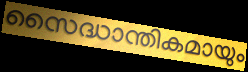
സൈദ്ധാന്തികമായും